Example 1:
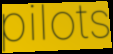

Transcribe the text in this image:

pilots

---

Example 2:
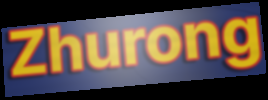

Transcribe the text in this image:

Zhurong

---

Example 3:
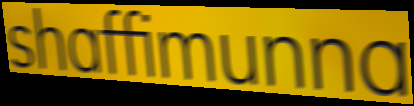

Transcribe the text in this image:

shaffimunna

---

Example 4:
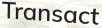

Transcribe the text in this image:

Transact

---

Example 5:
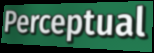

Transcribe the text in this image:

Perceptual